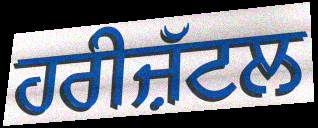
ਹਰੀਜ਼ੱਟਲ